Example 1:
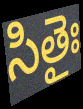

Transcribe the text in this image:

సితైః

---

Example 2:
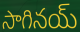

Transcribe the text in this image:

సాగినయ్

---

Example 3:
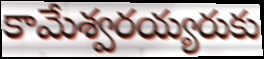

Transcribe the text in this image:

కామేశ్వరయ్యరుకు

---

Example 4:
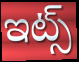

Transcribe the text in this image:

ఇట్స్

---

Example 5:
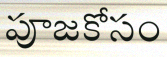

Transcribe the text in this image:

పూజకోసం